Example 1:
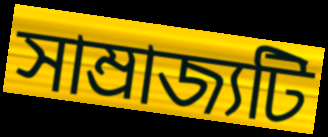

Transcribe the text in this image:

সাম্রাজ্যটি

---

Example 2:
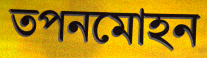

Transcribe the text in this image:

তপনমোহন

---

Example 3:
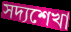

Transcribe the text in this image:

সদ্যশেখা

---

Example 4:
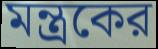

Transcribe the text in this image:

মন্ত্রকের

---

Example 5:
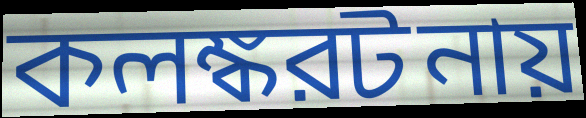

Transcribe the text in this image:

কলঙ্করটনায়